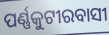
ପର୍ଣ୍ଣକୁଟୀରବାସୀ